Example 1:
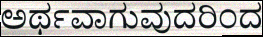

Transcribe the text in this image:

ಅರ್ಥವಾಗುವುದರಿಂದ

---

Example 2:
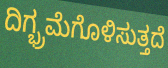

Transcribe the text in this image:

ದಿಗ್ಭ್ರಮೆಗೊಳಿಸುತ್ತದೆ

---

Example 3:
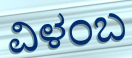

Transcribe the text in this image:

ವಿಳಂಬ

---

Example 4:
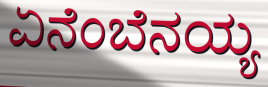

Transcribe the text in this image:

ಏನೆಂಬೆನಯ್ಯ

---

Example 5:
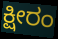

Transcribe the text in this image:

ಕ್ಷೀರಂ